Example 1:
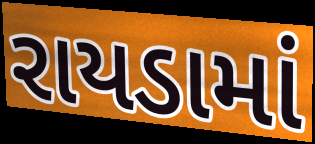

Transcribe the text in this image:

રાયડામાં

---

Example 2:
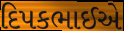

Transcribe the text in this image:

દિપકભાઈએ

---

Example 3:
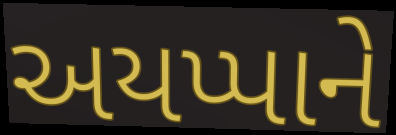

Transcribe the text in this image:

અયપ્પાને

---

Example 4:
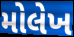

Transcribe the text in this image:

મોલેખ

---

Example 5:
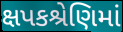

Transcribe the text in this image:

ક્ષપકશ્રેણિમાં